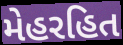
મેહરહિત